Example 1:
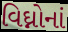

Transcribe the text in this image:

વિઘ્નોનાં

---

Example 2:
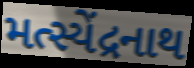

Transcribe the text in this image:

મત્સ્યેંદ્રનાથ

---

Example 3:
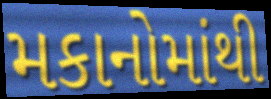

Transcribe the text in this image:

મકાનોમાંથી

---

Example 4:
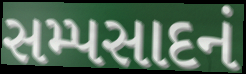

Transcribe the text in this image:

સમ્પસાદનં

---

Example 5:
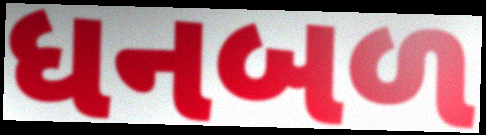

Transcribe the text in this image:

ધનબળ